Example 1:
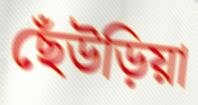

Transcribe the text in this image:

ছেঁউড়িয়া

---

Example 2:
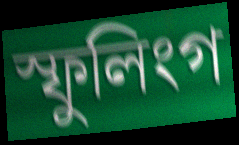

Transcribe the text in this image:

স্ফুলিংগ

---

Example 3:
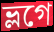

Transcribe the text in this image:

ভ্লগে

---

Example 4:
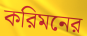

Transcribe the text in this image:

করিমনের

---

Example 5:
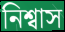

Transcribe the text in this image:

নিশ্বাস